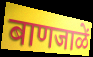
बाणजाळें